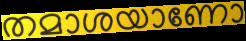
തമാശയാണോ